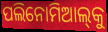
ପଲିନୋମିଆଲ୍‌କୁ